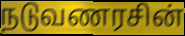
நடுவணரசின்